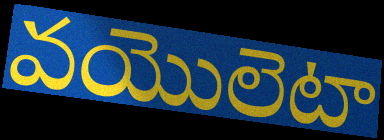
వయొలెటా